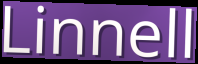
Linnell